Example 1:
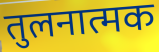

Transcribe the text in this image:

तुलनात्मक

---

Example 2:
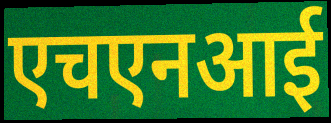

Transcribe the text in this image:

एचएनआई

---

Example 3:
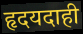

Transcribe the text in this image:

हृदयदाही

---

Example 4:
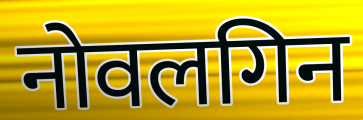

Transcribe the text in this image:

नोवलगिन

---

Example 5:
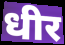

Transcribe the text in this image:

धीर